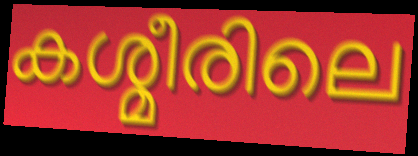
കശ്മീരിലെ